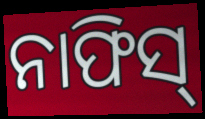
ନାଫିସ୍